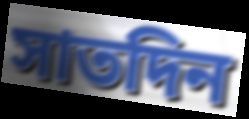
সাতদিন